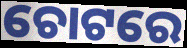
ଚୋଟରେ